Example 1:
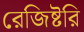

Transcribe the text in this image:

রেজিষ্টরি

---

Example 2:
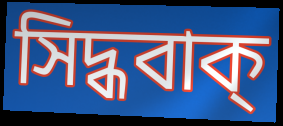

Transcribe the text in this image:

সিদ্ধবাক্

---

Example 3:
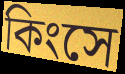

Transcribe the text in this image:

কিংসে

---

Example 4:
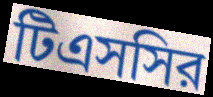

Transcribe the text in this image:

টিএসসির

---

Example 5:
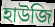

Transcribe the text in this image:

হাউজি